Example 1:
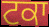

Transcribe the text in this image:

ਟਕਾ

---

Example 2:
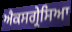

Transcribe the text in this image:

ਐਕਸਗ੍ਰੇਸਿਆ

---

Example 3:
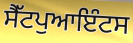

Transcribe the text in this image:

ਸੈੱਟਪੁਆਇੰਟਸ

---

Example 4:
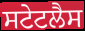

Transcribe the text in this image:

ਸਟੇਟਲੈਸ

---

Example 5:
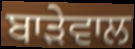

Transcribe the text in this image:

ਬਾੜੇਵਾਲ